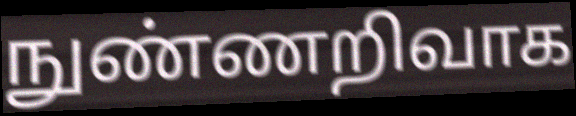
நுண்ணறிவாக